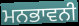
ਮਨਭਾਵਨੀ